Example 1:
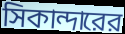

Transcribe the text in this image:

সিকান্দারের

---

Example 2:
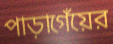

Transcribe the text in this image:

পাড়াগেঁয়ের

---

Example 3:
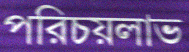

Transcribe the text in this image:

পরিচয়লাভ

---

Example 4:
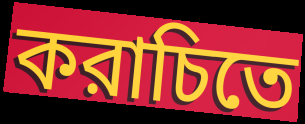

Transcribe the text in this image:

করাচিতে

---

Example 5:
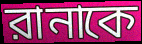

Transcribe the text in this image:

রানাকে